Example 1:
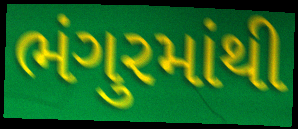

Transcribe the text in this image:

ભંગુરમાંથી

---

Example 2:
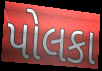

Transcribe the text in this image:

પોલકા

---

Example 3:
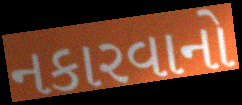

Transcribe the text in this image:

નકારવાનો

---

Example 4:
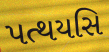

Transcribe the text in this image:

પત્થયસિ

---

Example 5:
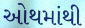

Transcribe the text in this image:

ઓથમાંથી